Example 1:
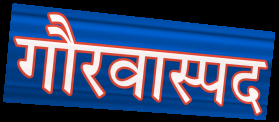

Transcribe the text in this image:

गौरवास्पद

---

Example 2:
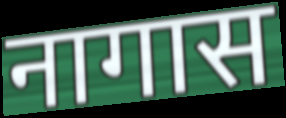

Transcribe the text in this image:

नागास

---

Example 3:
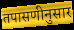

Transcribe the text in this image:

तपासणीनुसार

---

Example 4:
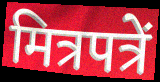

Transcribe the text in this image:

मित्रपत्रें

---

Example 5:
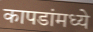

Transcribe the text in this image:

कापडांमध्ये